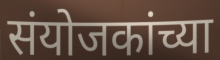
संयोजकांच्या